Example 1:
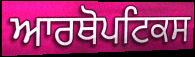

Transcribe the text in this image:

ਆਰਥੋਪਟਿਕਸ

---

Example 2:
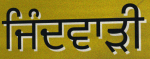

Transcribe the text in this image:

ਜਿੰਦਵਾੜੀ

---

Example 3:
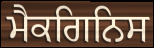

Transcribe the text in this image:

ਮੈਕਗਿਨਿਸ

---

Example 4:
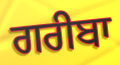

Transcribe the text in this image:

ਗਰੀਬਾ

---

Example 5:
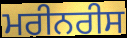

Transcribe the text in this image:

ਮਰੀਨਰੀਸ